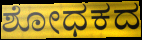
ಶೋಧಕದ